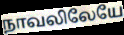
நாவலிலேயே